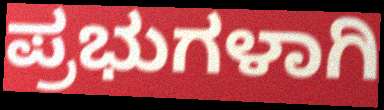
ಪ್ರಭುಗಳಾಗಿ